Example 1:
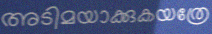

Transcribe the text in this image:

അടിമയാക്കുകയത്രേ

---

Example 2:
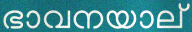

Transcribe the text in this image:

ഭാവനയാല്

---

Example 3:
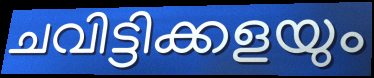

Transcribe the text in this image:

ചവിട്ടിക്കളയും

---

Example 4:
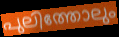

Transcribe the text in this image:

പുലിത്തോലും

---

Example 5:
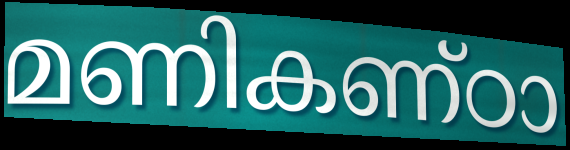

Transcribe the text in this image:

മണികണ്ഠാ